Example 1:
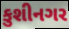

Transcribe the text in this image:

કુશીનગર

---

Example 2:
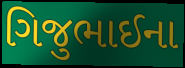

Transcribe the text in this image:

ગિજુભાઈના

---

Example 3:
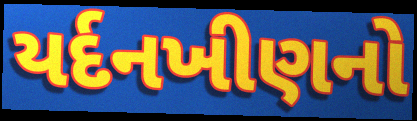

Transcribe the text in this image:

યર્દનખીણનો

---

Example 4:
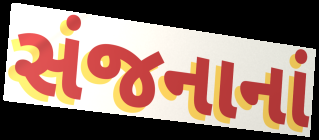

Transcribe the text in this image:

સંજનાનાં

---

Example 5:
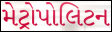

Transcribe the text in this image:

મેટ્રોપોલિટન